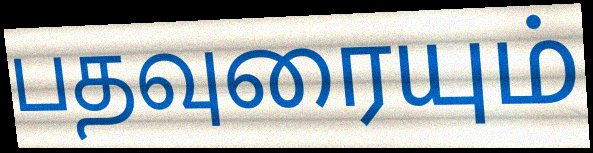
பதவுரையும்